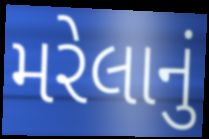
મરેલાનું